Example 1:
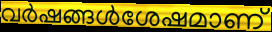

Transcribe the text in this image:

വർഷങ്ങൾശേഷമാണ്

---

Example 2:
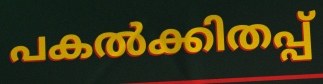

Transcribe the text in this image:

പകൽക്കിതപ്പ്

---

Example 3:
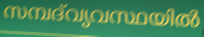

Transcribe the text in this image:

സമ്പദ്‌വ്യവസ്ഥയിൽ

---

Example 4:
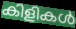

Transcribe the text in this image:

കിളികൾ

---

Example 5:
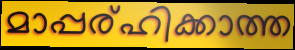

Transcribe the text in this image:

മാപ്പര്ഹിക്കാത്ത